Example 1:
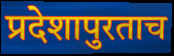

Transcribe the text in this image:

प्रदेशापुरताच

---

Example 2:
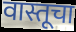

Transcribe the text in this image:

वास्तूचा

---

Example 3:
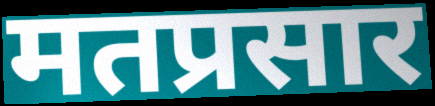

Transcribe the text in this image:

मतप्रसार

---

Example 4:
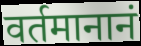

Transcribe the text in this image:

वर्तमानानं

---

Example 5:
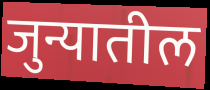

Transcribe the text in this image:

जुन्यातील